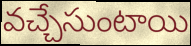
వచ్చేసుంటాయి